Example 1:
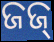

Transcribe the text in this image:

ଜଜ୍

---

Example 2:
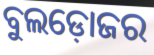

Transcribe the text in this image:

ବୁଲଡ଼ୋଜର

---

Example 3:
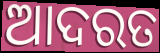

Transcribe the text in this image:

ଆଦରତ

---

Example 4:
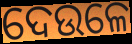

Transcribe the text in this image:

ଦେଉଳେ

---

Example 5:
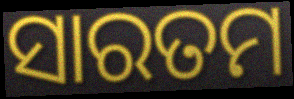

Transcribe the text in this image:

ସାରତମ